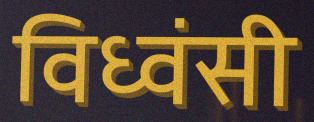
विध्वंसी